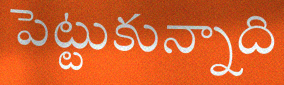
పెట్టుకున్నాది